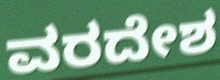
ವರದೇಶ